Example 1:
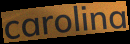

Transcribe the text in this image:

carolina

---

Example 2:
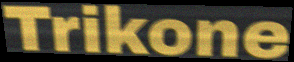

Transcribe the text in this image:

Trikone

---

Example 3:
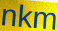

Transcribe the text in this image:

nkm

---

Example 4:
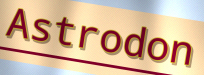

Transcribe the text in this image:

Astrodon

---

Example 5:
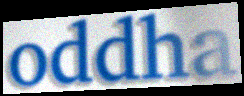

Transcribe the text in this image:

oddha